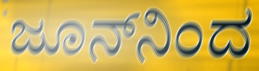
ಜೂನ್‌ನಿಂದ